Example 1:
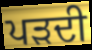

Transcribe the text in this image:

ਪੜਦੀ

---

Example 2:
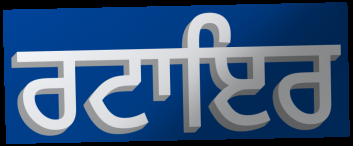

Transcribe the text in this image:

ਰਟਾਇਰ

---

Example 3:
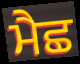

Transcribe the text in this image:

ਮੈਛ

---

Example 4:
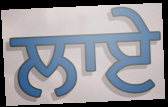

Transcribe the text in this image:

ਲਾਏ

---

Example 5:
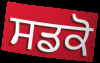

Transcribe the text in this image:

ਸਡਕੋ